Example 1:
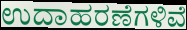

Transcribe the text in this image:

ಉದಾಹರಣೆಗಳಿವೆ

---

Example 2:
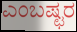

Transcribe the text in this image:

ಎಂಬಷ್ಟರ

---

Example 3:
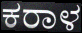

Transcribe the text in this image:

ಕರಾಳ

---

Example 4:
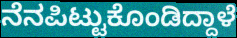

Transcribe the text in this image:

ನೆನಪಿಟ್ಟುಕೊಂಡಿದ್ದಾಳೆ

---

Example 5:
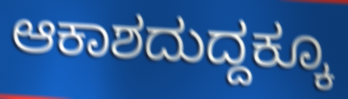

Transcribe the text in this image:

ಆಕಾಶದುದ್ದಕ್ಕೂ